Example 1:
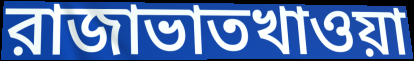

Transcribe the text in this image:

রাজাভাতখাওয়া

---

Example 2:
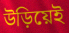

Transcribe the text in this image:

উড়িয়েই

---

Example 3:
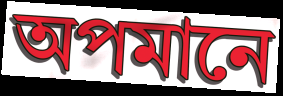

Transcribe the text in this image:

অপমানে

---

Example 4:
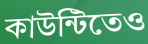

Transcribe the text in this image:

কাউন্টিতেও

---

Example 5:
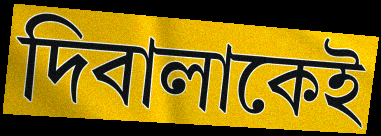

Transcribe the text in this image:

দিবালাকেই